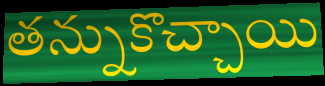
తన్నుకొచ్చాయి